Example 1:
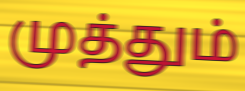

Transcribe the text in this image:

முத்தும்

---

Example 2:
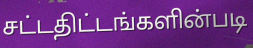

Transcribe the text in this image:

சட்டதிட்டங்களின்படி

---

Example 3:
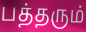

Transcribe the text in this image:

பத்தரும்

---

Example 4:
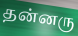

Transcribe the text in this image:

தன்னரு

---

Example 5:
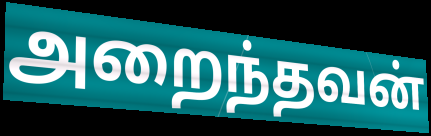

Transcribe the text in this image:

அறைந்தவன்